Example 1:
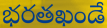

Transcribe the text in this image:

భరతఖండే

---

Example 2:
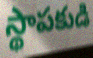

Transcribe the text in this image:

స్థాపకుడి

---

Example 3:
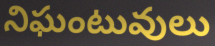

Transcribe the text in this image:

నిఘంటువులు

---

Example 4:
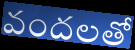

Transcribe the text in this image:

వందలతో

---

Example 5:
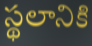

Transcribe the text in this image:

స్థలానికి